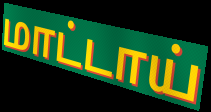
மாட்டாய்